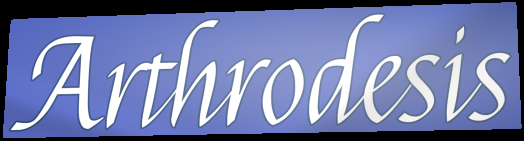
Arthrodesis